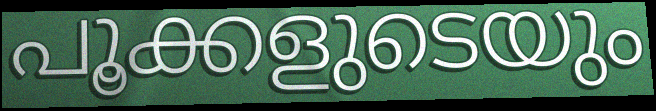
പൂക്കളുടെയും